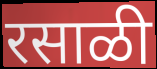
रसाळी